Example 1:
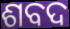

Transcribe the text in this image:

ଶବଦ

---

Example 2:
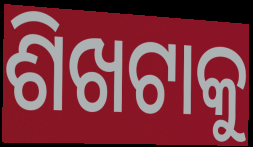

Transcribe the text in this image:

ଶିଖଟାକୁ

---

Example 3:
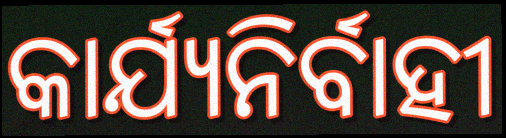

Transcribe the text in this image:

କାର୍ଯ୍ୟନିର୍ବାହୀ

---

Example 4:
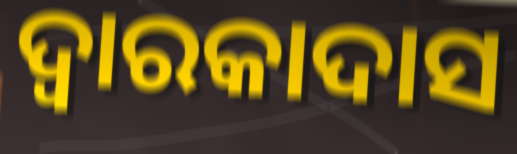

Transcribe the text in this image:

ଦ୍ୱାରକାଦାସ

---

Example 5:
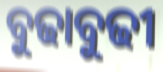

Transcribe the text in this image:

ବୁଢାବୁଢୀ